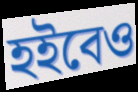
হইবেও